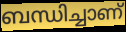
ബന്ധിച്ചാണ്